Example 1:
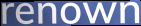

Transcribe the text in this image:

renown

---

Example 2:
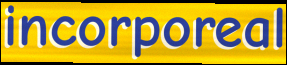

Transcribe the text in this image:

incorporeal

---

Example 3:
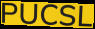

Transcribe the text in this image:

PUCSL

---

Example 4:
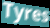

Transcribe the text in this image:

Tyres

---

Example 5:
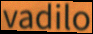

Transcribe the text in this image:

vadilo